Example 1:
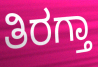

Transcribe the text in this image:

ತಿರಗ್ತಾ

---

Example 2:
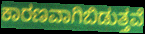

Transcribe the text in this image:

ಕಾರಣವಾಗಿಬಿಡುತ್ತವೆ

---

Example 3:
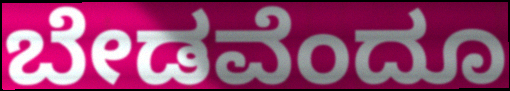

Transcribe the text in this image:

ಬೇಡವೆಂದೂ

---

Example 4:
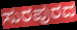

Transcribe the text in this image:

ಸುರಪುರದ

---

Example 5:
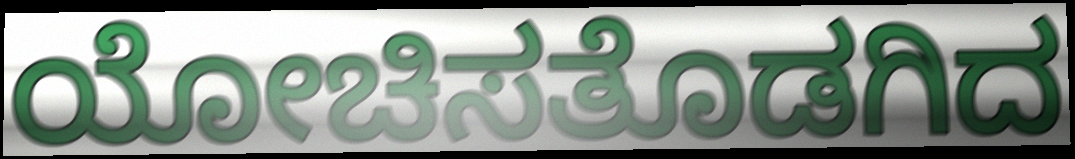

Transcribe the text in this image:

ಯೋಚಿಸತೊಡಗಿದ